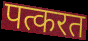
पत्करत